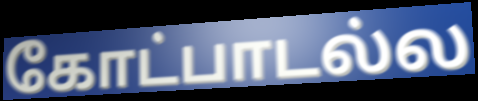
கோட்பாடல்ல